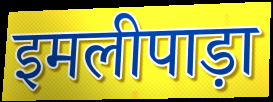
इमलीपाड़ा